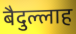
बैदुल्लाह